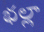
భల్లా